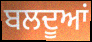
ਬਲਦੂਆਂ